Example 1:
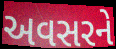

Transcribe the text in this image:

અવસરને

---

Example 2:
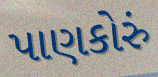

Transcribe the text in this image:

પાણકોરું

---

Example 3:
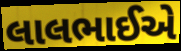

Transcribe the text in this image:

લાલભાઈએ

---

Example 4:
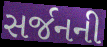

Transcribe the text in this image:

સર્જનની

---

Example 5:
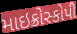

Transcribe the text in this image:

માઇક્રોસ્કોપી